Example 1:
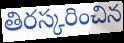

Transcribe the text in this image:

తిరస్కరించిన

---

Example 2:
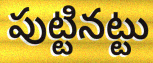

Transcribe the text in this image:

పుట్టినట్టు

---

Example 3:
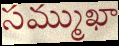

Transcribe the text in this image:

సమ్ముఖా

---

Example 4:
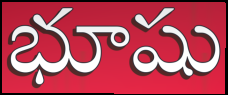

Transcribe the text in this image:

భూషు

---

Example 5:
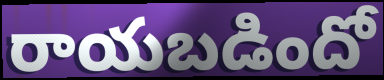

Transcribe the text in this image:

రాయబడిందో